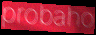
probaho